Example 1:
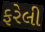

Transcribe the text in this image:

ફરેલી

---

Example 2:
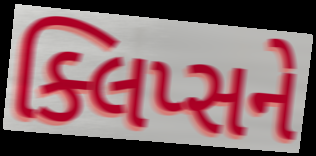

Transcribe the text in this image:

ક્લિપ્સને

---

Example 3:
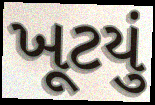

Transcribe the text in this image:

ખૂટયું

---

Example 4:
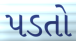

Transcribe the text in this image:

પડતો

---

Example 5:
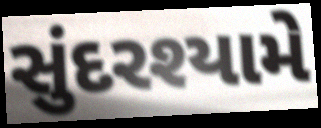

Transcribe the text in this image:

સુંદરશ્યામે